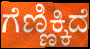
ಗೆಣ್ಣಿಕ್ಕಿದೆ